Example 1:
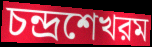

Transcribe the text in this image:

চন্দ্রশেখরম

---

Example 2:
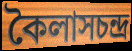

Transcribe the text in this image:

কৈলাসচন্দ্র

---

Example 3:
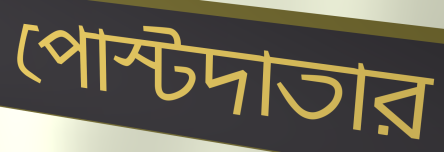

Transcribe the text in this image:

পোস্টদাতার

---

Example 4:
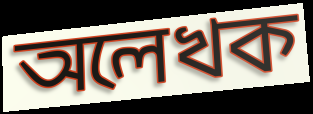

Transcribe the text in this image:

অলেখক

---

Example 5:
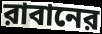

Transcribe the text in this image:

রাবানের